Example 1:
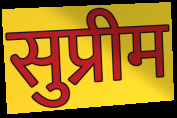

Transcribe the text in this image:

सुप्रीम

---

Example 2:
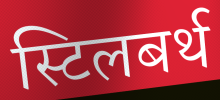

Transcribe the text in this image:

स्टिलबर्थ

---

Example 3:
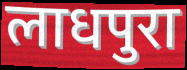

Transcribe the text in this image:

लाधपुरा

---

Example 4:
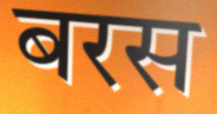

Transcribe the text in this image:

बरस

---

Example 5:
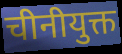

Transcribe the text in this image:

चीनीयुक्त